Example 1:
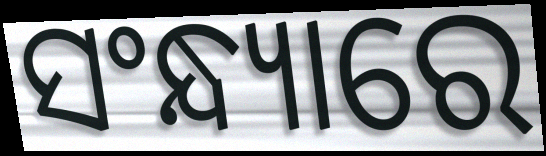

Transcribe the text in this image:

ସଂନ୍ଧ୍ୟାରେ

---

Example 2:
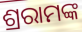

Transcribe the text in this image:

ଶ୍ରରାମଙ୍କ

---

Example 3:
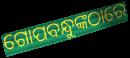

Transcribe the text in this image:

ଗୋପବନ୍ଧୁଙ୍କଠାରେ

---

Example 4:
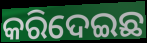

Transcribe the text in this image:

କରିଦେଇଛ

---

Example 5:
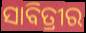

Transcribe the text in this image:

ସାବିତ୍ରୀର